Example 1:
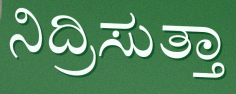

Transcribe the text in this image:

ನಿದ್ರಿಸುತ್ತಾ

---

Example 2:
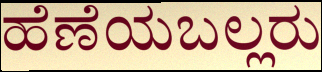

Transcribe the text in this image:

ಹೆಣೆಯಬಲ್ಲರು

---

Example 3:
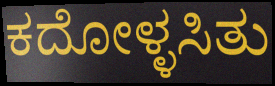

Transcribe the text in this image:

ಕದೋಳ್ಳಸಿತು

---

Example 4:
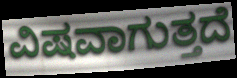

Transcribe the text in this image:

ವಿಷವಾಗುತ್ತದೆ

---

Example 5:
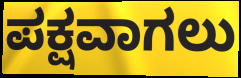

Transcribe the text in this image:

ಪಕ್ಷವಾಗಲು